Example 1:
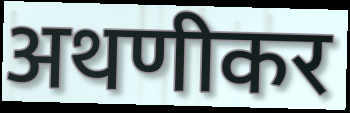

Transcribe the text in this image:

अथणीकर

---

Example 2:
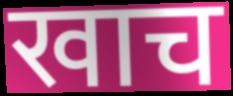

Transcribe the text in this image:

खाच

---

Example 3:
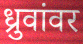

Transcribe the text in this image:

ध्रुवांवर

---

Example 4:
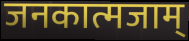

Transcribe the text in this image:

जनकात्मजाम्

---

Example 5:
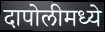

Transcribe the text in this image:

दापोलीमध्ये